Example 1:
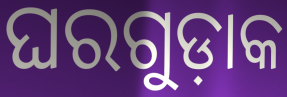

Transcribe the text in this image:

ଘରଗୁଡ଼ାକ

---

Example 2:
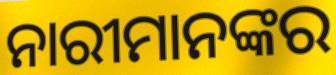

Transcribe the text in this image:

ନାରୀମାନଙ୍କର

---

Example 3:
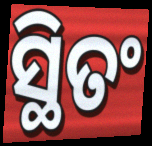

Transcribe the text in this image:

ସ୍ଥିତଂ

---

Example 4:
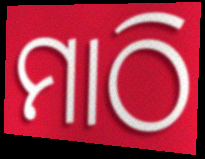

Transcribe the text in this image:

ମାଠି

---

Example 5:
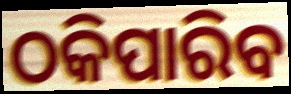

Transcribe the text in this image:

ଠକିପାରିବ